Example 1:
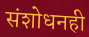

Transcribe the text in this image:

संशोधनही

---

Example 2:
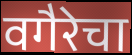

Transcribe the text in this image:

वगैरेचा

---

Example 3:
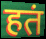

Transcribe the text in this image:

हतं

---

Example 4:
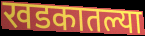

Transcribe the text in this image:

खडकातल्या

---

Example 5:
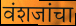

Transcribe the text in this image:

वंशजांचा